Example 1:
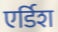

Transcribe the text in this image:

एर्डिश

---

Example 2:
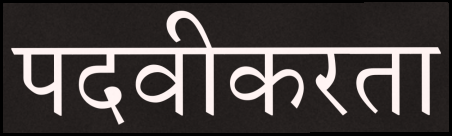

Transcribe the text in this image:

पदवीकरता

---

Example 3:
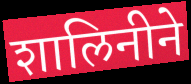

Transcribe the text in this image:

शालिनीने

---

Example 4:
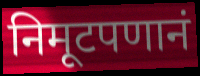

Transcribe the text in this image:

निमूटपणानं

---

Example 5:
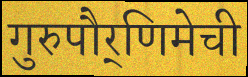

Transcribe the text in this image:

गुरुपौर्णिमेची